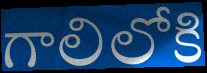
గాలిలోకి